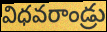
విధవరాండ్రు